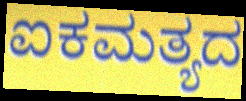
ಐಕಮತ್ಯದ